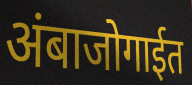
अंबाजोगाईत